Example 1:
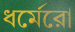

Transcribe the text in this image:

ধর্মেরো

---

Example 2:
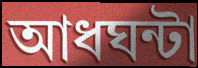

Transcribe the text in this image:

আধঘন্টা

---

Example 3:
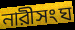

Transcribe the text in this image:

নারীসংঘ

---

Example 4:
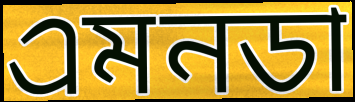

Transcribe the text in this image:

এমনডা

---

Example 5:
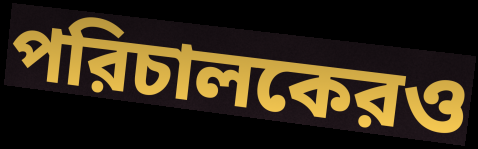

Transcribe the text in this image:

পরিচালকেরও